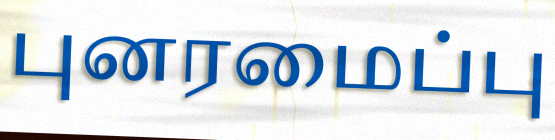
புனரமைப்பு